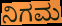
ನಿಗಮ